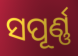
ସପୂର୍ଣ୍ଣ